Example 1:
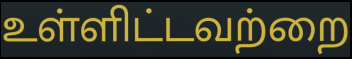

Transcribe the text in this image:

உள்ளிட்டவற்றை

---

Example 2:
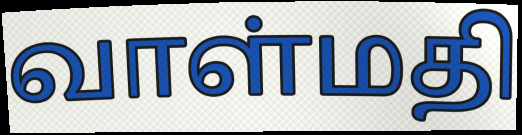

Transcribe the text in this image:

வாள்மதி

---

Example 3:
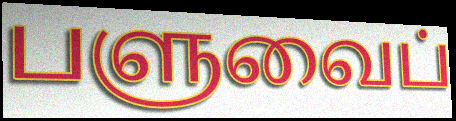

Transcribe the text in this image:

பளுவைப்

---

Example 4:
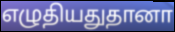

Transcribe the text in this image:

எழுதியதுதானா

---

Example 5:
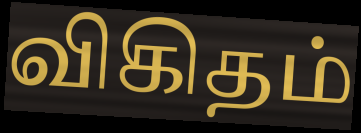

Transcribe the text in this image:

விகிதம்